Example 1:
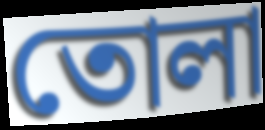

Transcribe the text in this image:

তোলা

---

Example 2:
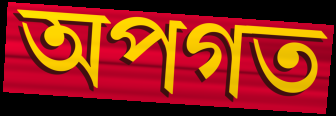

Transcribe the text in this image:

অপগত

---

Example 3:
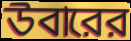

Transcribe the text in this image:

উবারের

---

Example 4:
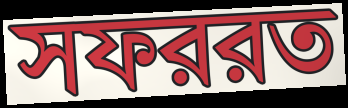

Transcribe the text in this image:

সফররত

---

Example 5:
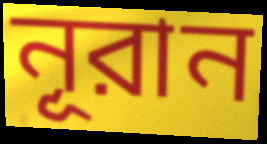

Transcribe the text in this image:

নূরান